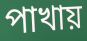
পাখায়